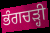
ਭੰਗਚੜ੍ਹੀ